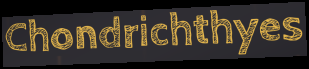
Chondrichthyes